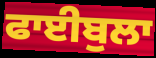
ਫਾਈਬੁਲਾ